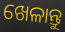
ଖେଳାନ୍ତୁ